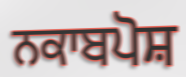
ਨਕਾਬਪੋਸ਼